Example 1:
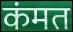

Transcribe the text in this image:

कंमत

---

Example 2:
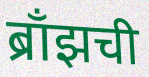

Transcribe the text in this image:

ब्राँझची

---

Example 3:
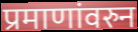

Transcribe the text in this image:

प्रमाणांवरुन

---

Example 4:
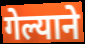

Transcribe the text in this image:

गेल्याने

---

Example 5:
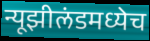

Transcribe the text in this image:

न्यूझीलंडमध्येच